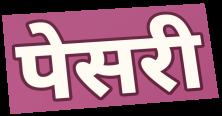
पेसरी